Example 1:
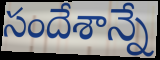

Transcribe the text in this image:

సందేశాన్నే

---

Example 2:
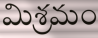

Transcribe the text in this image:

మిశ్రమం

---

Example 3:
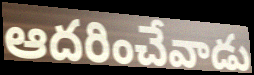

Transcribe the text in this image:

ఆదరించేవాడు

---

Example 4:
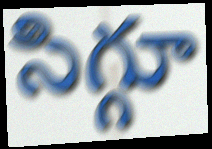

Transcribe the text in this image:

సిగ్గూ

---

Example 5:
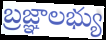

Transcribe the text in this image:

బ్రజ్ఞాలభ్యు